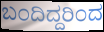
ಬಂದಿದ್ದರಿಂದ